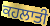
ਕਹਲਾਤੀ